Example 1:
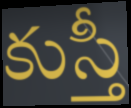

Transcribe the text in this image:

కుస్తీ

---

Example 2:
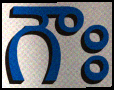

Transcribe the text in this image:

గౌః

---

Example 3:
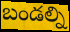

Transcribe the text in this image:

బండల్ని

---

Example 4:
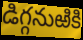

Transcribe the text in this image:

డిగ్గనుఱికి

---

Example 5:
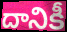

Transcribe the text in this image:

దానికీ